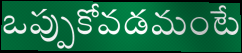
ఒప్పుకోవడమంటే